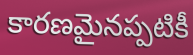
కారణమైనప్పటికీ